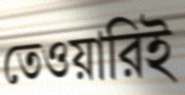
তেওয়ারিই